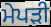
ਮੇਪੜੀ